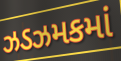
ઝડઝમકમાં